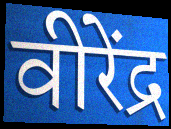
वीरेंद्र